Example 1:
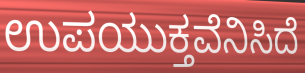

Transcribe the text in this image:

ಉಪಯುಕ್ತವೆನಿಸಿದೆ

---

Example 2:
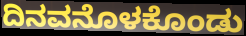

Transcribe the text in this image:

ದಿನವನೊಳಕೊಂಡು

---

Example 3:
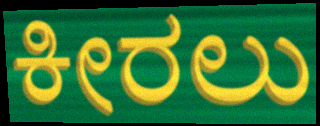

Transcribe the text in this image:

ಕೀರಲು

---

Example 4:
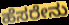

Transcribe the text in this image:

ಹೆಸರೇನು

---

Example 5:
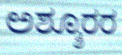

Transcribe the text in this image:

ಅಶ್ಶೂರರ